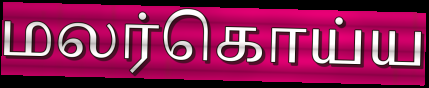
மலர்கொய்ய